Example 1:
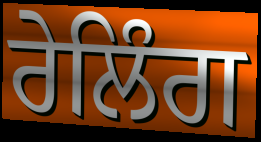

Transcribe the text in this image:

ਰੇਲਿੰਗ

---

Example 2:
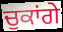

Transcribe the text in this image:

ਚੁਕਾਂਗੇ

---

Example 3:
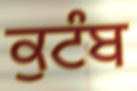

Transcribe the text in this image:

ਕੁਟੰਬ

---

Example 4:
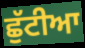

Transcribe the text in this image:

ਛੁੱਟੀਆ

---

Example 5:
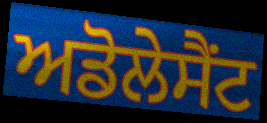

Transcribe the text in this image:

ਅਡੋਲੇਸੈਂਟ